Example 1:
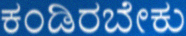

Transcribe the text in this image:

ಕಂಡಿರಬೇಕು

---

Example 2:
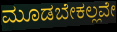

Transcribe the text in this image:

ಮೂಡಬೇಕಲ್ಲವೇ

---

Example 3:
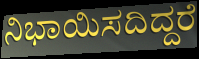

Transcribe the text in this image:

ನಿಭಾಯಿಸದಿದ್ದರೆ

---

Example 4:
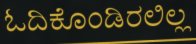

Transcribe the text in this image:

ಓದಿಕೊಂಡಿರಲಿಲ್ಲ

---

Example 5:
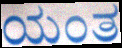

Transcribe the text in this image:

ಯಂತ